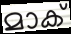
മാക്